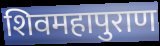
शिवमहापुराण